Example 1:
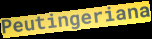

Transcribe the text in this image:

Peutingeriana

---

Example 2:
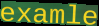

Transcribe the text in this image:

examle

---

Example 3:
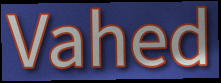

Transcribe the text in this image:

Vahed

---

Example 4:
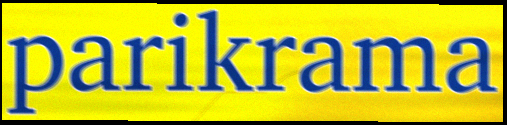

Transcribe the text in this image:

parikrama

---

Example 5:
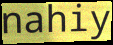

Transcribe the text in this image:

nahiy